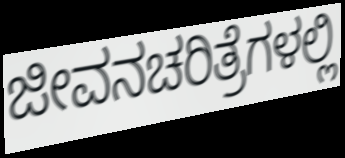
ಜೀವನಚರಿತ್ರೆಗಳಲ್ಲಿ